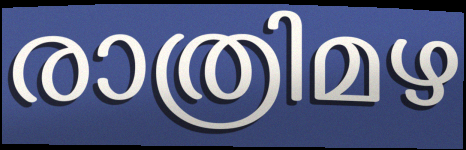
രാത്രിമഴ